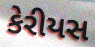
કેરીયસ